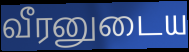
வீரனுடைய